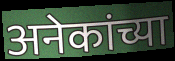
अनेकांच्या